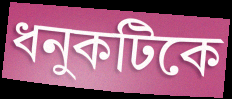
ধনুকটিকে